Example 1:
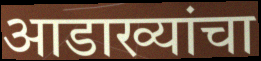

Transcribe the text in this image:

आडाख्यांचा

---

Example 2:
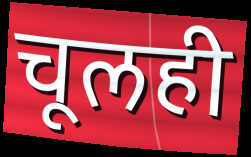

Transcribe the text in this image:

चूलही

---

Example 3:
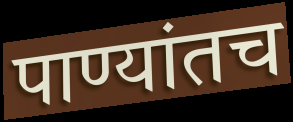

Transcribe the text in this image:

पाण्यांतच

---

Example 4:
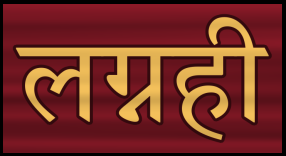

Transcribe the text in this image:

लग्नही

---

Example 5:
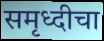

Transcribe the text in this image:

समृध्दीचा